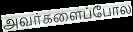
அவர்களைப்போல